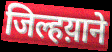
जिल्हय़ाने